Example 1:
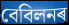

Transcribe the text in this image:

বেবিলনৰ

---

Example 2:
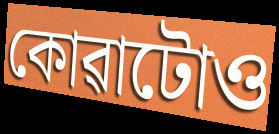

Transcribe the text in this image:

কোৱাটোও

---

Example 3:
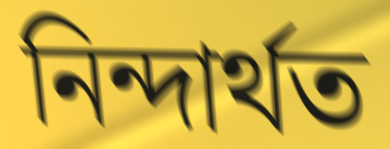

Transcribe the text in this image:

নিন্দাৰ্থত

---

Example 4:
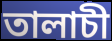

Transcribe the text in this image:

তালাচী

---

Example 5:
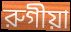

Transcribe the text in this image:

ৰুগীয়া